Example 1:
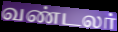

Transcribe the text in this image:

வண்டலர்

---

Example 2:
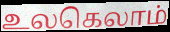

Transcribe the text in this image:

உலகெலாம்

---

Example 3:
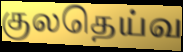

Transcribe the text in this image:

குலதெய்வ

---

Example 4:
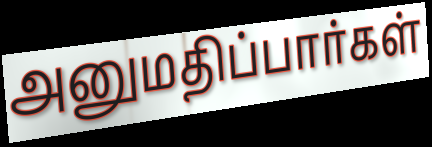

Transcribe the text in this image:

அனுமதிப்பார்கள்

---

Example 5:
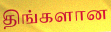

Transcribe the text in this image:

திங்களான